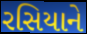
રસિયાને